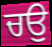
ਚਉ